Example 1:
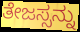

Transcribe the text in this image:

ತೇಜಸ್ಸನ್ನು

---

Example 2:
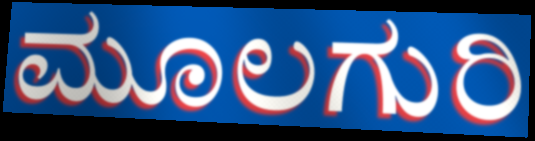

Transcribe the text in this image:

ಮೂಲಗುರಿ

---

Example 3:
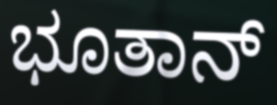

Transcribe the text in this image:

ಭೂತಾನ್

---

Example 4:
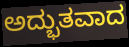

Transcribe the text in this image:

ಅದ್ಭುತವಾದ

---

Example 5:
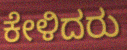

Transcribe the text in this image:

ಕೇಳಿದರು